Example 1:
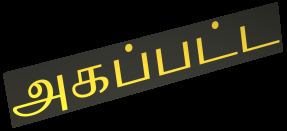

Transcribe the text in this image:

அகப்பட்ட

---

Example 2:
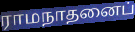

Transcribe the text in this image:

ராமநாதனைப்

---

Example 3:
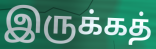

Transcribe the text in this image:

இருக்கத்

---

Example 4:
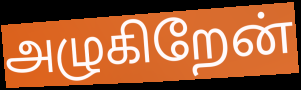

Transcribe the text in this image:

அழுகிறேன்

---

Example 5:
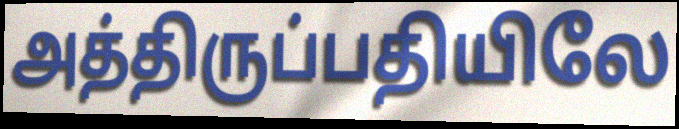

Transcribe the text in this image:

அத்திருப்பதியிலே